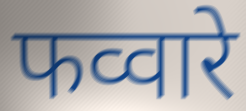
फव्वारे